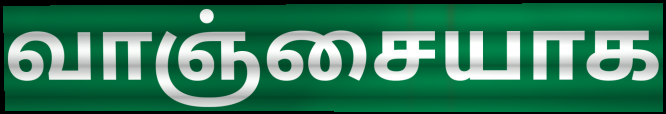
வாஞ்சையாக